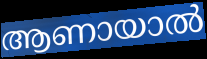
ആണായാൽ